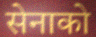
सेनाको